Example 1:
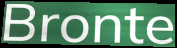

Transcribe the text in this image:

Bronte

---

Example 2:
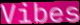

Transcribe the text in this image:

Vibes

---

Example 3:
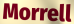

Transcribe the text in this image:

Morrell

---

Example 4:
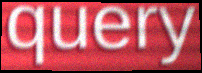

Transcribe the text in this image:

query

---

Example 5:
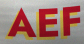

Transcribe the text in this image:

AEF